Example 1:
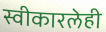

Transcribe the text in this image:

स्वीकारलेही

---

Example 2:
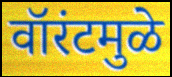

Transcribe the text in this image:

वॉरंटमुळे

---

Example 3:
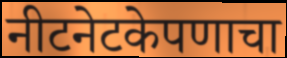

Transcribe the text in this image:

नीटनेटकेपणाचा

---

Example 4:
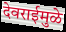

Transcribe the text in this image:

देवराईमुळे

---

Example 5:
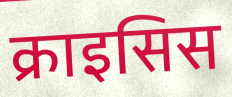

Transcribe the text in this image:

क्राइसिस